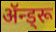
ॲन्ड्रू